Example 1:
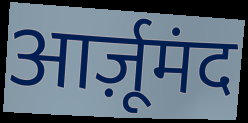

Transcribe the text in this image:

आर्ज़ूमंद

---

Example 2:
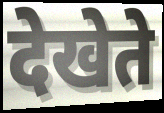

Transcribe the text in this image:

देखेते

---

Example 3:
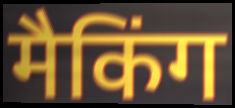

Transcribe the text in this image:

मैकिंग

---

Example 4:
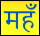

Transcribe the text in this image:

महँ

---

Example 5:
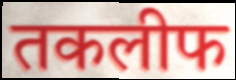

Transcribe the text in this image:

तकलीफ